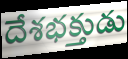
దేశభక్తుడు